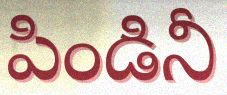
పిండినీ